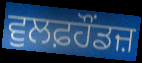
ਵੁਲਫ਼ਹੌਂਡਜ਼